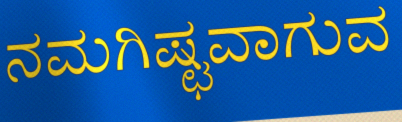
ನಮಗಿಷ್ಟವಾಗುವ